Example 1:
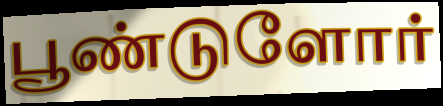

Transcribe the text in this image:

பூண்டுளோர்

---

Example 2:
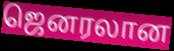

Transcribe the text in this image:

ஜெனரலான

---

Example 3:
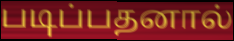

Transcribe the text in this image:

படிப்பதனால்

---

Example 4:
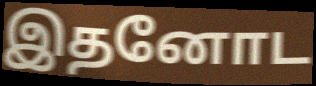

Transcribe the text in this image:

இதனோட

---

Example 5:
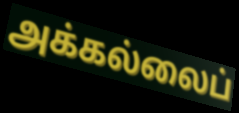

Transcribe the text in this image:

அக்கல்லைப்